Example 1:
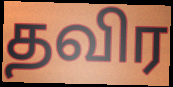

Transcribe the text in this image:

தவிர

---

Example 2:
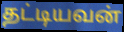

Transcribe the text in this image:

தட்டியவன்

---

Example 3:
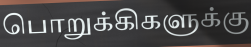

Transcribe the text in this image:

பொறுக்கிகளுக்கு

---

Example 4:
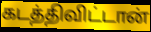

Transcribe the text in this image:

கடத்திவிட்டான்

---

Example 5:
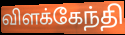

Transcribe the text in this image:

விளக்கேந்தி